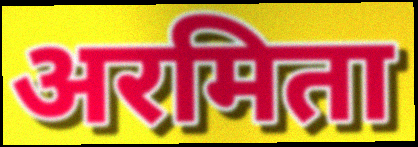
अरमिता